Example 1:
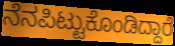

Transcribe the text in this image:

ನೆನಪಿಟ್ಟುಕೊಂಡಿದ್ದಾರೆ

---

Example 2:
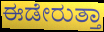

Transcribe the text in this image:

ಈಡೇರುತ್ತಾ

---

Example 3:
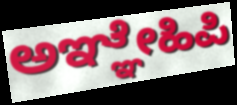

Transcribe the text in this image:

ಅಞ್ಞೇಹಿಪಿ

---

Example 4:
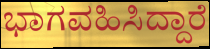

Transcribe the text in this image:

ಭಾಗವಹಿಸಿದ್ದಾರೆ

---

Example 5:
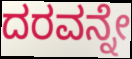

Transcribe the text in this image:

ದರವನ್ನೇ